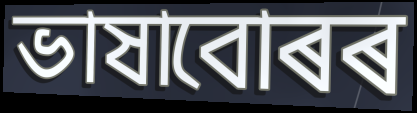
ভাষাবোৰৰ